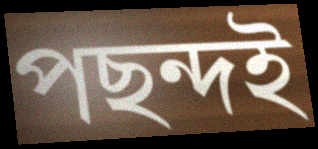
পছন্দই